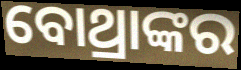
ବୋଥ୍ରାଙ୍କର